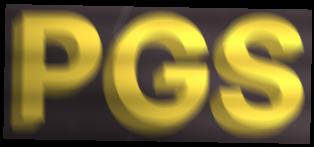
PGS